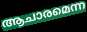
ആചാരമെന്ന